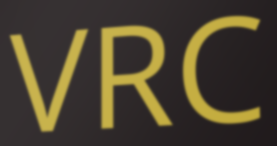
VRC